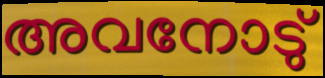
അവനോടു്